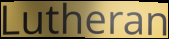
Lutheran